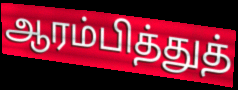
ஆரம்பித்துத்